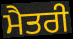
ਮੈਤਰੀ